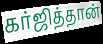
கர்ஜித்தான்